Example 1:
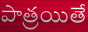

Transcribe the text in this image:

పాత్రయితే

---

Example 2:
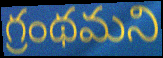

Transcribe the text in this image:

గ్రంథమని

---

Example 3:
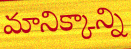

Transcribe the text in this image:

మానిక్కాన్ని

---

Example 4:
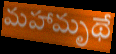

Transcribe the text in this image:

మహామృథే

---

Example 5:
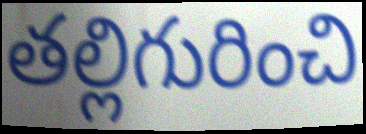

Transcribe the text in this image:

తల్లిగురించి